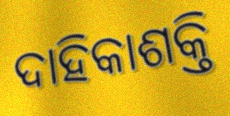
ଦାହିକାଶକ୍ତି